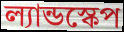
ল্যান্ডস্কেপ